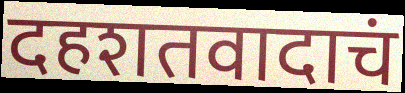
दहशतवादाचं